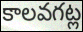
కాలవగట్ల